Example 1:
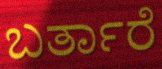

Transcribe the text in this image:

ಬರ್ತಾರೆ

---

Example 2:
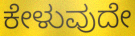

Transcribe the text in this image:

ಕೇಳುವುದೇ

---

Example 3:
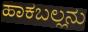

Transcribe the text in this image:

ಹಾಕಬಲ್ಲನು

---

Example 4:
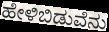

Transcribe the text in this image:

ಹೇಳಿಬಿಡುವೆನು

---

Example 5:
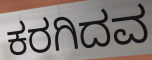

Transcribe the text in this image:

ಕರಗಿದವ